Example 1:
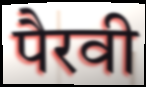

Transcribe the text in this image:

पैरवी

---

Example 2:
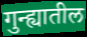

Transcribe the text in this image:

गुन्ह्यातील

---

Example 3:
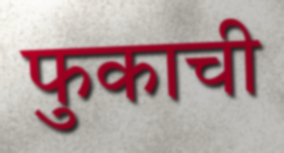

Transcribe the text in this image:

फुकाची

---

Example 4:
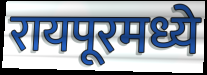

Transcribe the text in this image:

रायपूरमध्ये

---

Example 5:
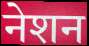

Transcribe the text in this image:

नेशन